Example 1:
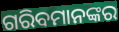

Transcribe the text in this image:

ଗରିବମାନଙ୍କର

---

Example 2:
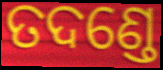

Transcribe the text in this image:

ତଦଣ୍ଡେ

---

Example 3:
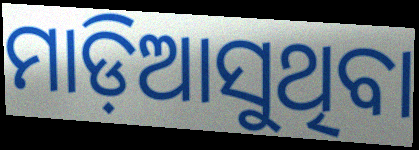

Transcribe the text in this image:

ମାଡ଼ିଆସୁଥିବା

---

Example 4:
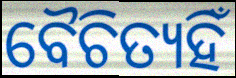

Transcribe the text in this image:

ବୈଚିତ୍ୟହିଁ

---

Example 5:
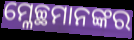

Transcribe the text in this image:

ମ୍ଳେଚ୍ଛମାନଙ୍କର